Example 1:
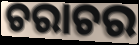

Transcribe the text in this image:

ଚରାଚର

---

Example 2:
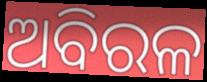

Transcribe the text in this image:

ଅବିରଳ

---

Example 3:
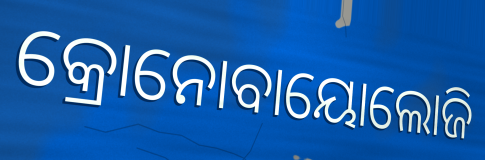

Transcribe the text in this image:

କ୍ରୋନୋବାୟୋଲୋଜି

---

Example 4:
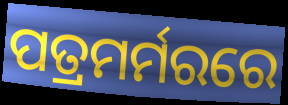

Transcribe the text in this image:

ପତ୍ରମର୍ମରରେ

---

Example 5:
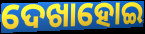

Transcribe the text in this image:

ଦେଖାହୋଇ